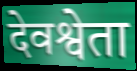
देवश्वेता